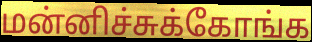
மன்னிச்சுக்கோங்க